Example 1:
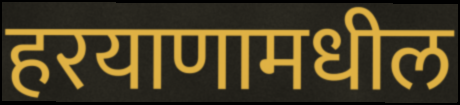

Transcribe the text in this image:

हरयाणामधील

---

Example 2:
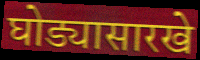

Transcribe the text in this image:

घोड्यासारखे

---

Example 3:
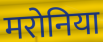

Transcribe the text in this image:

मरोनिया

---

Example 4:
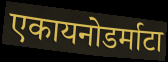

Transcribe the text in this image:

एकायनोडर्माटा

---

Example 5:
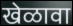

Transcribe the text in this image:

खेळावा